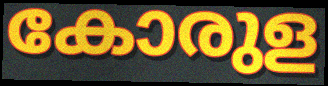
കോരുള